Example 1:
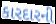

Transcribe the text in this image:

કારદારની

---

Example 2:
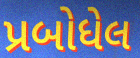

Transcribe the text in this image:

પ્રબોધેલ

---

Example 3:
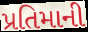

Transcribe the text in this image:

પ્રતિમાની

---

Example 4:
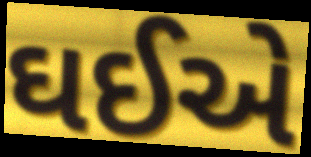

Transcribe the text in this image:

ઘઈએ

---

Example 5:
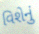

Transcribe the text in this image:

વિશેનું